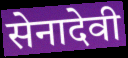
सेनादेवी